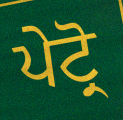
ਪੇਟ੍ਰੋ